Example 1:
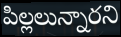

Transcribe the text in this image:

పిల్లలున్నారని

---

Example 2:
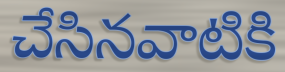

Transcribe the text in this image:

చేసినవాటికి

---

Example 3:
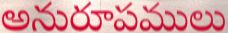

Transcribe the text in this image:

అనురూపములు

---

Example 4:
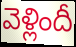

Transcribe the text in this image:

వెళ్లిందీ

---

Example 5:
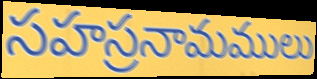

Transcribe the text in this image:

సహస్రనామములు